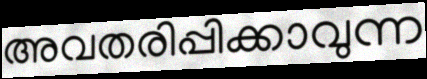
അവതരിപ്പിക്കാവുന്ന